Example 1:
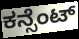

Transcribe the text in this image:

ಕನ್ಸೆಂಟ್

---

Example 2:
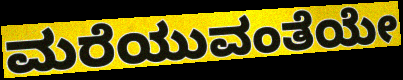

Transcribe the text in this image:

ಮರೆಯುವಂತೆಯೇ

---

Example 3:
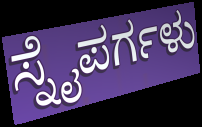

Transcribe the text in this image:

ಸ್ನೈಪರ್ಗಳು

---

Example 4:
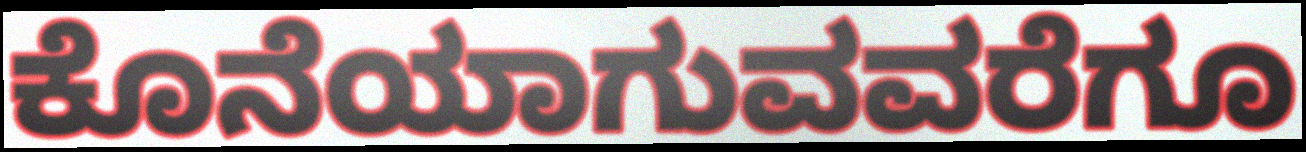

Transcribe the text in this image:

ಕೊನೆಯಾಗುವವರೆಗೂ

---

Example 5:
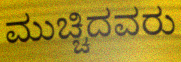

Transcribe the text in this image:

ಮುಚ್ಚಿದವರು